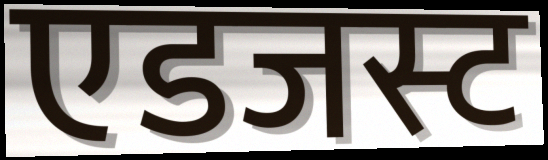
एडजस्ट